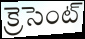
క్రెసెంట్